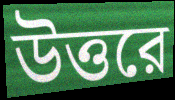
উত্তরে